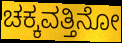
ಚಕ್ಕವತ್ತಿನೋ